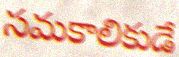
సమకాలికుడే